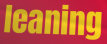
leaning